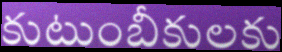
కుటుంబీకులకు